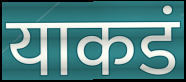
याकडं